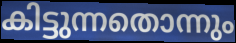
കിട്ടുന്നതൊന്നും